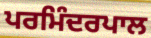
ਪਰਮਿੰਦਰਪਾਲ